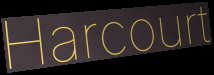
Harcourt